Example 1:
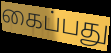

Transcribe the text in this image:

கைப்பது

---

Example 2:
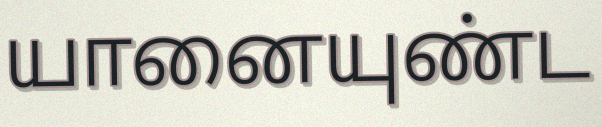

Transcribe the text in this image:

யானையுண்ட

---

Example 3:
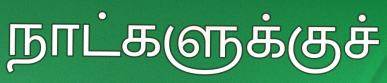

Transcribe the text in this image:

நாட்களுக்குச்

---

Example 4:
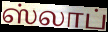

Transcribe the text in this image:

ஸ்லாப்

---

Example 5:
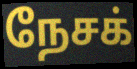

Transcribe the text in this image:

நேசக்